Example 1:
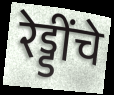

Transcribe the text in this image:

रेड्डींचे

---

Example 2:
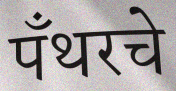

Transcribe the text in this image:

पँथरचे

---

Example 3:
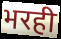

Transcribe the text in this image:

भरही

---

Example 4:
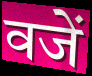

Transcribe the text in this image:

वजें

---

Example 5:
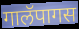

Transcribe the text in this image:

गालॅपागस